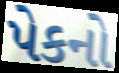
પેકનો